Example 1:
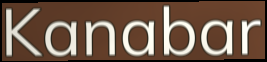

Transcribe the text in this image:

Kanabar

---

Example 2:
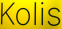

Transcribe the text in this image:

Kolis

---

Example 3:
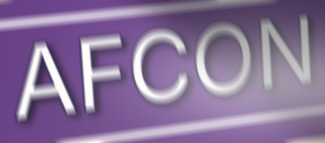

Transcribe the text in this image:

AFCON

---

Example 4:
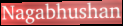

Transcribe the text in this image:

Nagabhushan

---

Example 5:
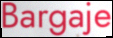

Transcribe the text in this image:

Bargaje